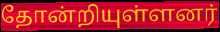
தோன்றியுள்ளனர்